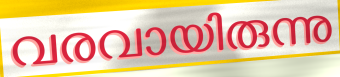
വരവായിരുന്നു